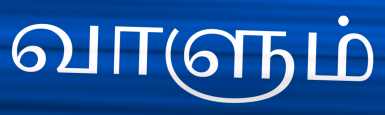
வாளும்